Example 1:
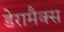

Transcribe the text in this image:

डेरामैक्स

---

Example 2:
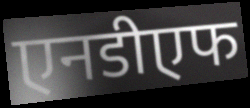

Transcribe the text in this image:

एनडीएफ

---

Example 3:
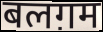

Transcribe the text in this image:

बलग़म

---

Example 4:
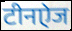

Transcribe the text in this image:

टीनऐज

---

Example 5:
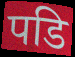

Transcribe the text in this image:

पडि